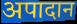
अपादान